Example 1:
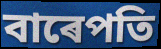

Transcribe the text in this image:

বাৰেপতি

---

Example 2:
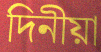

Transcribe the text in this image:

দিনীয়া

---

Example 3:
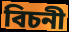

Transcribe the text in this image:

বিচনী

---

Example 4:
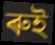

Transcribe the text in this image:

ৰুই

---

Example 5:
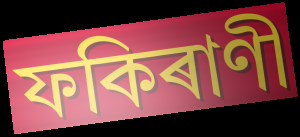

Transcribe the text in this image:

ফকিৰাণী